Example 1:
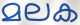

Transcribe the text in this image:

മലക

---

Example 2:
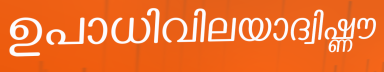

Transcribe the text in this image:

ഉപാധിവിലയാദ്വിഷ്ണൗ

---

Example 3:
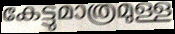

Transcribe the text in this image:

കേട്ടുമാത്രമുള്ള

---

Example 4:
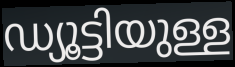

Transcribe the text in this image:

ഡ്യൂട്ടിയുള്ള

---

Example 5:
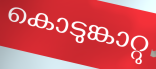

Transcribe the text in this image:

കൊടുങ്കാറ്റു